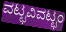
ವಟ್ಟವಿವಟ್ಟಂ